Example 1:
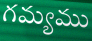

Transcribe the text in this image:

గమ్యము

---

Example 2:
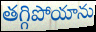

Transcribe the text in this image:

తగ్గిపోయాను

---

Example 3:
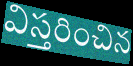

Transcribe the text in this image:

విస్తరించిన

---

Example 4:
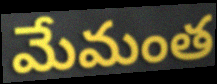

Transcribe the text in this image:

మేమంత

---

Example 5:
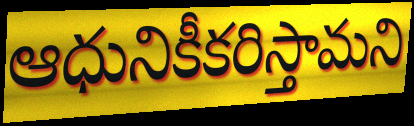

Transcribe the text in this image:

ఆధునికీకరిస్తామని